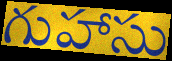
గుహాసు